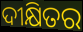
ଦୀକ୍ଷିତର